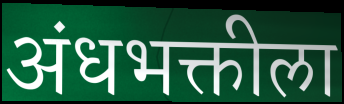
अंधभक्तीला